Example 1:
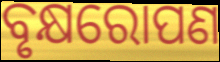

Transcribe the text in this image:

ବୃକ୍ଷରୋପଣ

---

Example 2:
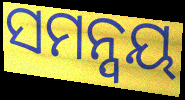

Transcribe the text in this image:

ସମନ୍ନ୍ୱୟ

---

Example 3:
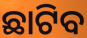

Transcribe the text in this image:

ଛାଟିବ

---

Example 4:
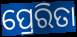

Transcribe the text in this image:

ପ୍ରେରିତା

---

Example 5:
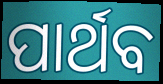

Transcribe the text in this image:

ପାର୍ଥବ